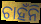
ଚାହଁନି